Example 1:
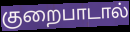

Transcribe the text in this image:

குறைபாடால்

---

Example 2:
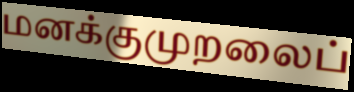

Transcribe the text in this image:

மனக்குமுறலைப்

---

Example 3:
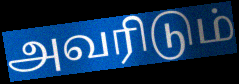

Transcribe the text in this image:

அவரிடும்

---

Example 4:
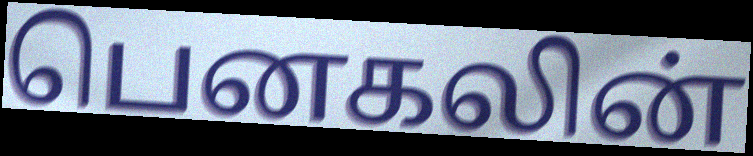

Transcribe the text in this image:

பெனகலின்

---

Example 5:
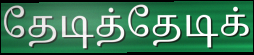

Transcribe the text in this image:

தேடித்தேடிக்